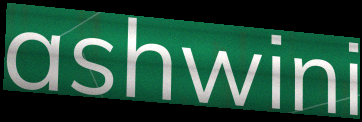
ashwini